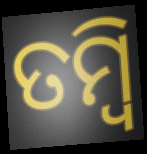
ତମ୍ବି